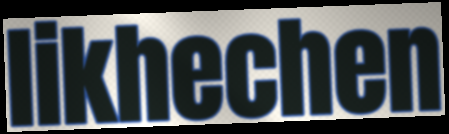
likhechen